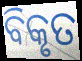
ବିକୃତ